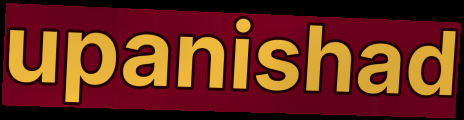
upanishad